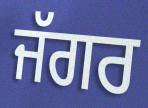
ਜੱਗਰ